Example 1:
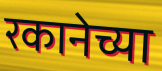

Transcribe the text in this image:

रकानेच्या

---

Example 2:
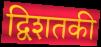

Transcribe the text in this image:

द्विशतकी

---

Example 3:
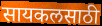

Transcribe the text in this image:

सायकलसाठी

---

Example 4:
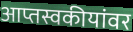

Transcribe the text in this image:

आप्तस्वकीयांवर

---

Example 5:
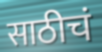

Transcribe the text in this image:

साठीचं